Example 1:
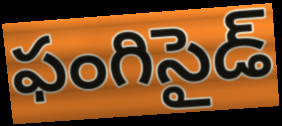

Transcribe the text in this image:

ఫంగిసైడ్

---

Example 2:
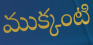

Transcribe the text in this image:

ముక్కంటి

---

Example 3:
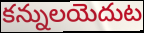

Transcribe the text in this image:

కన్నులయెదుట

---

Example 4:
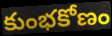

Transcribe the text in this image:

కుంభకోణం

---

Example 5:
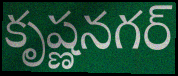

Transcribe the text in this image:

కృష్ణనగర్